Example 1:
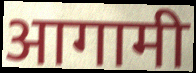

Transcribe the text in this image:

आगामी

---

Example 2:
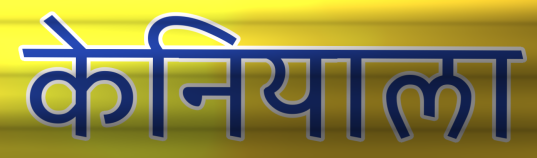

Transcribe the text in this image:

केनियाला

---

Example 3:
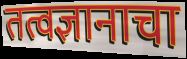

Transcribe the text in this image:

तत्वज्ञानाचा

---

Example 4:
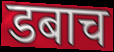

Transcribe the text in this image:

डबाच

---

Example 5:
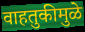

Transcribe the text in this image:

वाहतुकीमुळे